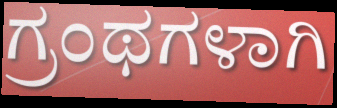
ಗ್ರಂಥಗಳಾಗಿ